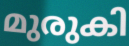
മുരുകി